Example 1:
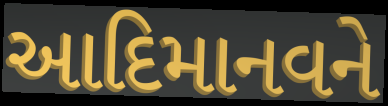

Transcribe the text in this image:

આદિમાનવને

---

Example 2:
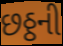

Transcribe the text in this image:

છઠ્ઠની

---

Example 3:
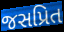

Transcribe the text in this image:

જસપ્રિત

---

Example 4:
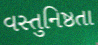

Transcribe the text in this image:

વસ્તુનિષ્ઠતા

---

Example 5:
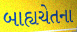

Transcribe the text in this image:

બાહ્યચેતના